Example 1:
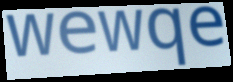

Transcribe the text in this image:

wewqe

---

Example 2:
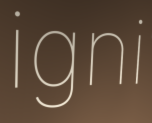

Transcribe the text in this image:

igni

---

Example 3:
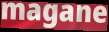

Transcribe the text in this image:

magane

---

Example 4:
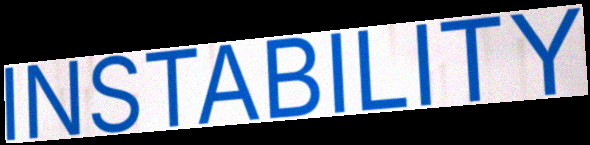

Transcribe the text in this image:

INSTABILITY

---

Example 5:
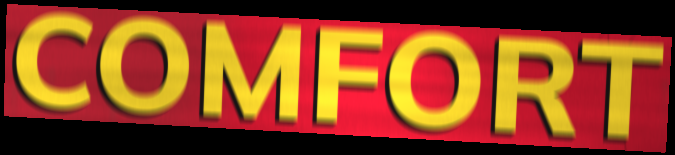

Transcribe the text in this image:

COMFORT